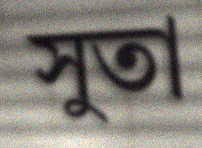
সুতা